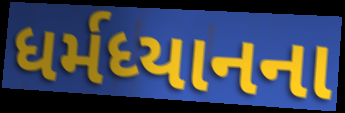
ધર્મધ્યાનના